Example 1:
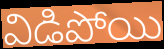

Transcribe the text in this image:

విడిపోయి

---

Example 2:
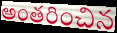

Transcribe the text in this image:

అంతరించిన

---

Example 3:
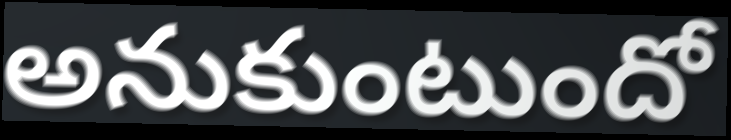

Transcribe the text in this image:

అనుకుంటుందో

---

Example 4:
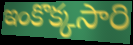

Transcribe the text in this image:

ఇంకొక్కసారి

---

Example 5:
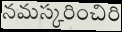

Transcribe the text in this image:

నమస్కరించిరి